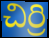
చిర్రి